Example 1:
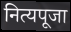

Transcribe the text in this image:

नित्यपूजा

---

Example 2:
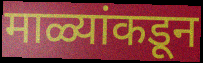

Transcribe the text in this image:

माळ्यांकडून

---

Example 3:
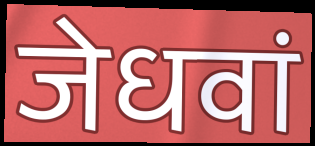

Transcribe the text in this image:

जेधवां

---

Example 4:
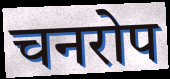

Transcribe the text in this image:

चनरोप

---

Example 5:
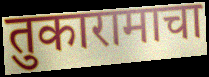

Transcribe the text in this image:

तुकारामाचा